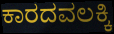
ಕಾರದವಲಕ್ಕಿ